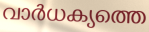
വാർധക്യത്തെ